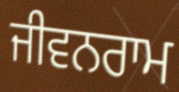
ਜੀਵਨਰਾਮ